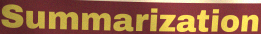
Summarization